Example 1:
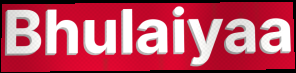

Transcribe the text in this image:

Bhulaiyaa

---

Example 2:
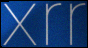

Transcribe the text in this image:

xrr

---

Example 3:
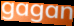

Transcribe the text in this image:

gagan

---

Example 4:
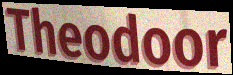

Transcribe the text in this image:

Theodoor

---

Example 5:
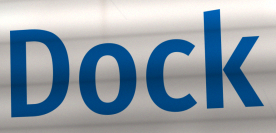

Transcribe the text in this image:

Dock